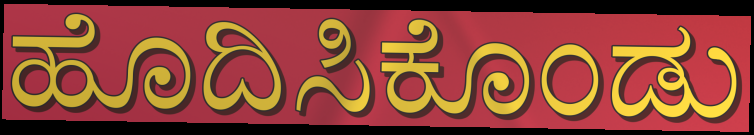
ಹೊದಿಸಿಕೊಂಡು